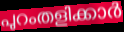
പുറംതളിക്കാർ